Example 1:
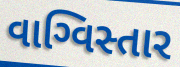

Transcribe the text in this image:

વાગ્વિસ્તાર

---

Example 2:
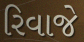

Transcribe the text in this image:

રિવાજે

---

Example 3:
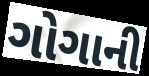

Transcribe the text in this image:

ગોગાની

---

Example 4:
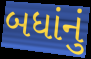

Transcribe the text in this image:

બધાંનું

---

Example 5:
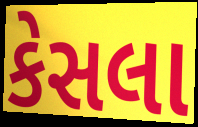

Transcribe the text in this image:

કેસલા